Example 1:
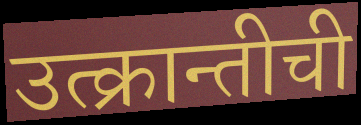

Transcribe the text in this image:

उत्क्रान्तीची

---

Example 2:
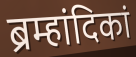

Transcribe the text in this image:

ब्रम्हांदिकां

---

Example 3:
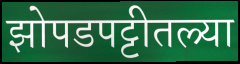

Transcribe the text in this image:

झोपडपट्टीतल्या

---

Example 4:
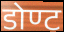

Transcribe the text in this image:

डोण्ट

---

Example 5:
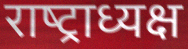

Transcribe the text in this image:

राष्ट्राध्यक्ष